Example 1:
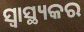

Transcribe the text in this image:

ସ୍ୱାସ୍ଥ୍ୟକର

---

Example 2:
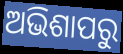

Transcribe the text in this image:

ଅଭିଶାପରୁ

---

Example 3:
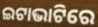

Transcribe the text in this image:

ଇଟାଭାଟିରେ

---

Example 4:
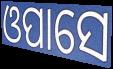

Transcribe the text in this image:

ଓପାସେ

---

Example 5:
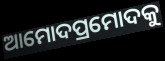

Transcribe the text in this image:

ଆମୋଦପ୍ରମୋଦକୁ